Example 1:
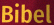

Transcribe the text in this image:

Bibel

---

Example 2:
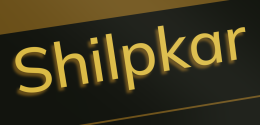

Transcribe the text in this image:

Shilpkar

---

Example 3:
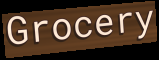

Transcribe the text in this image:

Grocery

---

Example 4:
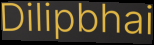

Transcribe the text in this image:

Dilipbhai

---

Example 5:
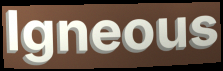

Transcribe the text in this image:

Igneous